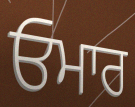
ਓਮਾਰ